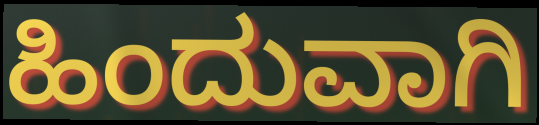
ಹಿಂದುವಾಗಿ